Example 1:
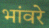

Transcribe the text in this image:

भांवरे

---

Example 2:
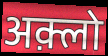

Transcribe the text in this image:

अक़्लो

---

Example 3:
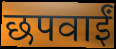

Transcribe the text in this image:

छपवाईं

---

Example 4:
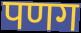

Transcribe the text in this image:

पणग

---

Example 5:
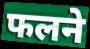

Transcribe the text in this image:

फलने